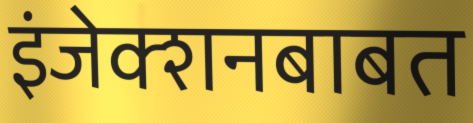
इंजेक्शनबाबत